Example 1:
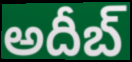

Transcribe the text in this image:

అదీబ్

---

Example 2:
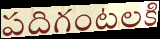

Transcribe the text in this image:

పదిగంటలకి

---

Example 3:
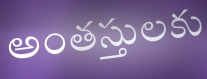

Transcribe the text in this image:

అంతస్తులకు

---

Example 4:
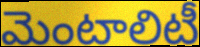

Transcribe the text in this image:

మెంటాలిటీ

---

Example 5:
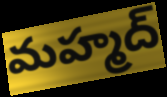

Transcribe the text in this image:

మహ్మద్